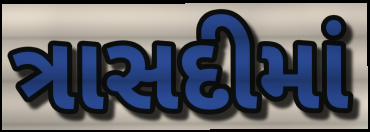
ત્રાસદીમાં